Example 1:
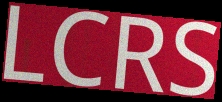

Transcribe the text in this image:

LCRS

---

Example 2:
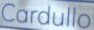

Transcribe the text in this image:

Cardullo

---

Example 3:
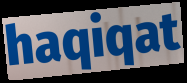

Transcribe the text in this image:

haqiqat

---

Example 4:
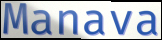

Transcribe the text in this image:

Manava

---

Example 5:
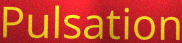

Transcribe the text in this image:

Pulsation